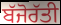
ਬੱਜੋਰੱਤੀ